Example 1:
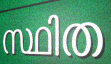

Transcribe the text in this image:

സ്ഥിത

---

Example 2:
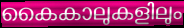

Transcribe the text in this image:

കൈകാലുകളിലും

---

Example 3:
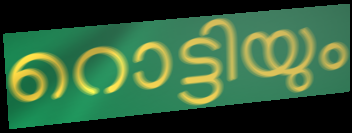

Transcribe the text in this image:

റൊട്ടിയും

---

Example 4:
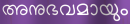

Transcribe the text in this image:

അനുഭവമായും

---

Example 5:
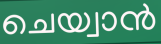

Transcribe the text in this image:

ചെയ്വാൻ